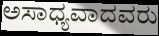
ಅಸಾಧ್ಯವಾದವರು